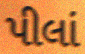
પીલાં